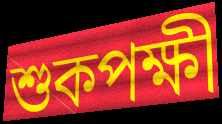
শুকপক্ষী